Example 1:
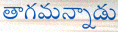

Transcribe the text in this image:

తాగమన్నాడు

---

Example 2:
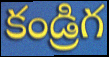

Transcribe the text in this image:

కండ్రిగ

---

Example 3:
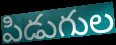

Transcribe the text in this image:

పిడుగుల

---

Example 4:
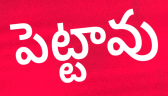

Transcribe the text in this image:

పెట్టావు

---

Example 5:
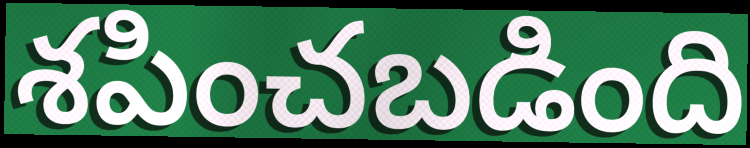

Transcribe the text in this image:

శపించబడింది